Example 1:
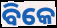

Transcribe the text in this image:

ବିକେ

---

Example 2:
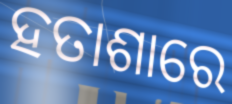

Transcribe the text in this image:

ହତାଶାରେ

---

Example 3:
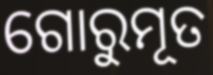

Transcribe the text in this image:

ଗୋରୁମୂତ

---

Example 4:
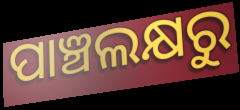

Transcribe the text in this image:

ପାଞ୍ଚଲକ୍ଷରୁ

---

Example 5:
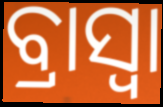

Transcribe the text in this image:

ବ୍ରାସ୍ବା